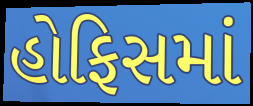
હોફિસમાં